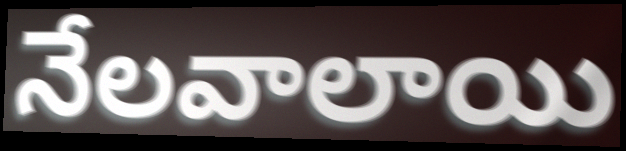
నేలవాలాయి